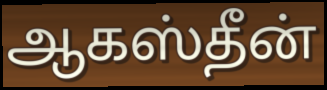
ஆகஸ்தீன்